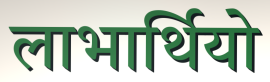
लाभार्थियो